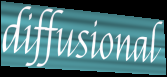
diffusional